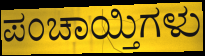
ಪಂಚಾಯ್ತಿಗಳು